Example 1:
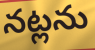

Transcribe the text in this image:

నట్లను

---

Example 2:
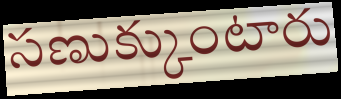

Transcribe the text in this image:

సణుక్కుంటారు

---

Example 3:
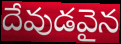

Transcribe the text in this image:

దేవుడవైన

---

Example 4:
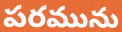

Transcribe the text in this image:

పరమును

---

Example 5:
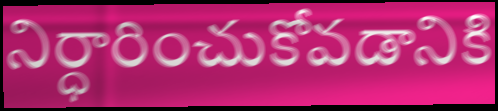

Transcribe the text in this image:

నిర్ధారించుకోవడానికి